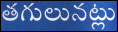
తగులునట్లు